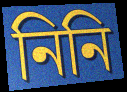
নিনি